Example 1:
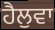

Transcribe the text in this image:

ਹੈਲੁਵਾ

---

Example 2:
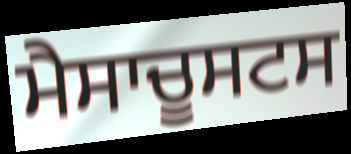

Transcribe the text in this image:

ਮੈਸਾਚੂਸਟਸ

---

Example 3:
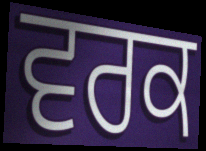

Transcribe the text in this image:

ਵਰਕ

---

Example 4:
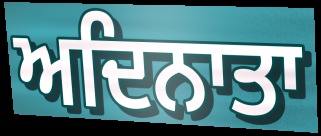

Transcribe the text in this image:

ਅਦਿਨਾਤਾ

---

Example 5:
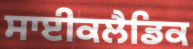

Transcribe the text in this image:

ਸਾਈਕਲੈਡਿਕ